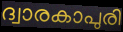
ദ്വാരകാപുരി